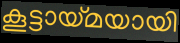
കൂട്ടായ്മയായി